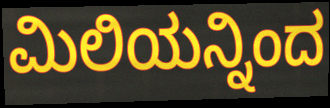
ಮಿಲಿಯನ್ನಿಂದ